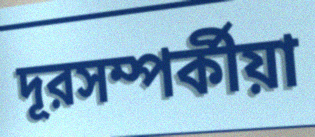
দূরসম্পর্কীয়া